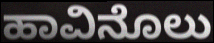
ಹಾವಿನೊಲು